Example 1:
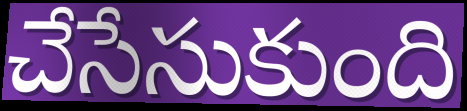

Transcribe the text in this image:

చేసేసుకుంది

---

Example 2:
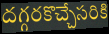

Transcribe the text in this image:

దగ్గరకొచ్చేసరికి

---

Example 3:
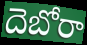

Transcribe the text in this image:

దెబోరా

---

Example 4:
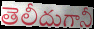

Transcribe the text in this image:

తెలీదుగానీ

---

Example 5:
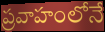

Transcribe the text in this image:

ప్రవాహంలోనే